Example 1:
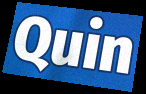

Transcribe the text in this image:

Quin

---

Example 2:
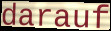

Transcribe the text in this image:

darauf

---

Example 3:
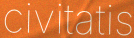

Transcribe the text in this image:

civitatis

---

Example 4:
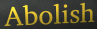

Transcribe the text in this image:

Abolish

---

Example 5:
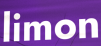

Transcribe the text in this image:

limon